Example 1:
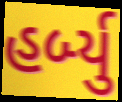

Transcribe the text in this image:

હર્બ્યુ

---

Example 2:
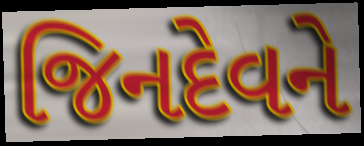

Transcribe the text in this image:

જિનદેવને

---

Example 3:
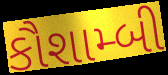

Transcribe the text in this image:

કૌશામ્બી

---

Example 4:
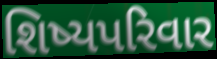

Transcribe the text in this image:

શિષ્યપરિવાર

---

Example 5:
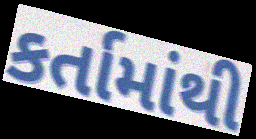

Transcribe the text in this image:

કર્તામાંથી